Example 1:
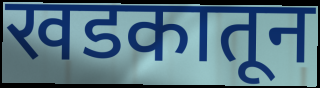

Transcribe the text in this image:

खडकातून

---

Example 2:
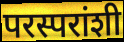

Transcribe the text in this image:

परस्परांशी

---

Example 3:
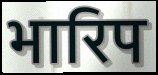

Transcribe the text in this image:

भारिप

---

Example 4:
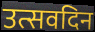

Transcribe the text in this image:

उत्सवदिन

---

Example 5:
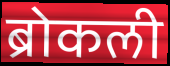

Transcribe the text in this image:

ब्रोकली